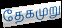
தேகமுறு